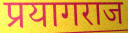
प्रयागराज